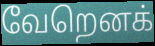
வேறெனக்